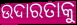
ଉଦାରତାକୁ